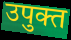
उपुक्त